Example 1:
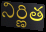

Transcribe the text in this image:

నిర్ణిత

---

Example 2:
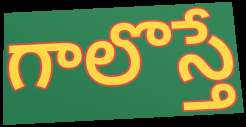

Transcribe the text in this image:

గాలొస్తే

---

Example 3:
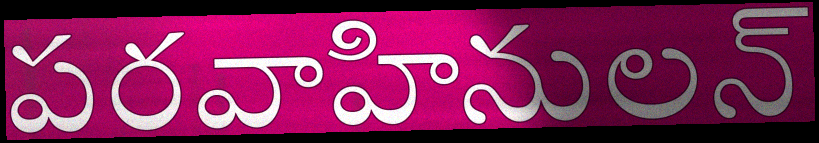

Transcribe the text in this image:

పరవాహినులన్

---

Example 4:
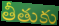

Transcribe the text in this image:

తీతుకు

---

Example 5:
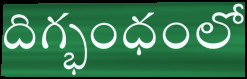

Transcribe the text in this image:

దిగ్భంధంలో